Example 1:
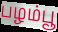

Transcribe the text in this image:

பழம்பூ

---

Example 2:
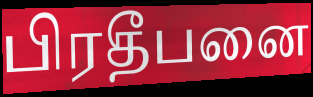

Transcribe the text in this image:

பிரதீபனை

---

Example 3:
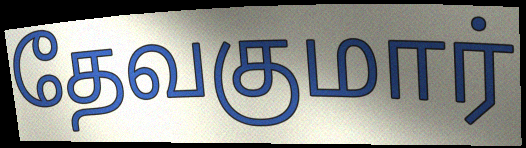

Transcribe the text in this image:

தேவகுமார்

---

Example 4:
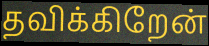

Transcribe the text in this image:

தவிக்கிறேன்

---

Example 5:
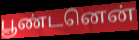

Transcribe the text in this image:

பூண்டனென்